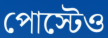
পোস্টেও